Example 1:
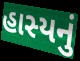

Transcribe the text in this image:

હાસ્યનું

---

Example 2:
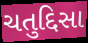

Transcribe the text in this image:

ચતુદ્દિસા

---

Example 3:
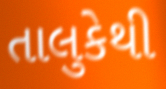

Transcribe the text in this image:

તાલુકેથી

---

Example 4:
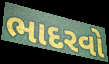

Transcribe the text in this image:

ભાદરવો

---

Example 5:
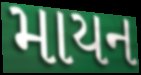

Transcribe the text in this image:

માયન